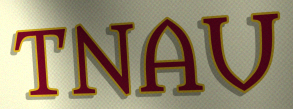
TNAU